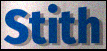
Stith